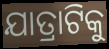
ଯାତ୍ରାଟିକୁ